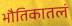
भौतिकातलं